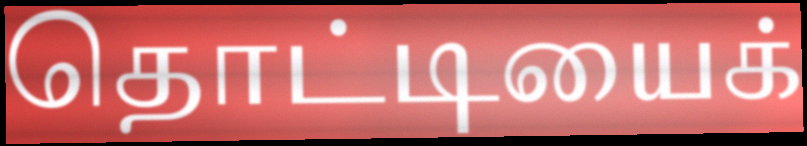
தொட்டியைக்